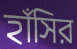
হাঁসির